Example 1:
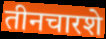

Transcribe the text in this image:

तीनचारशे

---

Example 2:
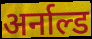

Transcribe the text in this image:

अर्नाल्ड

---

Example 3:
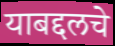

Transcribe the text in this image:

याबद्दलचे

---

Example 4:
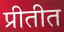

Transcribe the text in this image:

प्रीतीत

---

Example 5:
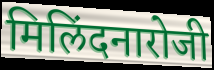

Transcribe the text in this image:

मिलिंदनारोजी